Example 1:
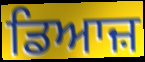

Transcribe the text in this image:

ਡਿਆਜ਼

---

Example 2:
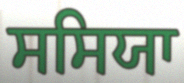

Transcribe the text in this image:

ਸਸਿਯਾ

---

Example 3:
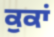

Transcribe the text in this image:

ਕੁਕਾਂ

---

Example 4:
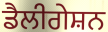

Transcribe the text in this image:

ਡੈਲੀਗੇਸ਼ਨ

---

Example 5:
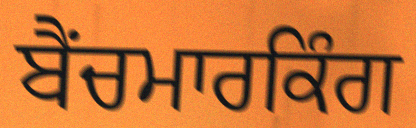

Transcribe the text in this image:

ਬੈਂਚਮਾਰਕਿੰਗ